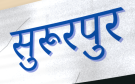
सुरूरपुर